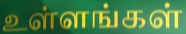
உள்ளங்கள்